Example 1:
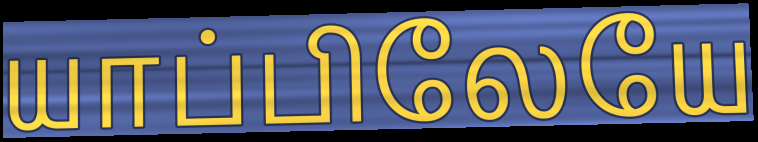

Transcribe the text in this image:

யாப்பிலேயே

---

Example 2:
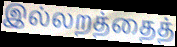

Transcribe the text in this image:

இல்லறத்தைத்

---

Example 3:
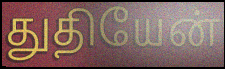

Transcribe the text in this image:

துதியேன்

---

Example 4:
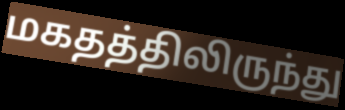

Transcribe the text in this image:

மகதத்திலிருந்து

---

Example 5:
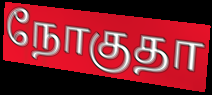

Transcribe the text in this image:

நோகுதா